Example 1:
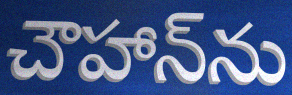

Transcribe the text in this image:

చౌహాన్‌ను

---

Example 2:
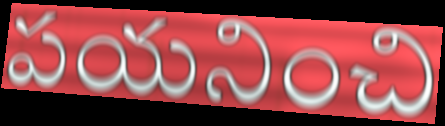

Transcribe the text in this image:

పయనించి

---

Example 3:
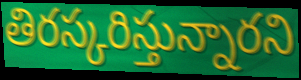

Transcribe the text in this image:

తిరస్కరిస్తున్నారని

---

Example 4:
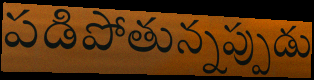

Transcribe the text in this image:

పడిపోతున్నప్పుడు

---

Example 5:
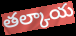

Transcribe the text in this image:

తల్కాయ